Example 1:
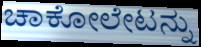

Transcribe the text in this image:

ಚಾಕೋಲೇಟನ್ನು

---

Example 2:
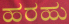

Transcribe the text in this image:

ಹರಹು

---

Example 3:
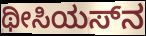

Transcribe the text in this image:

ಥೀಸಿಯಸ್‌ನ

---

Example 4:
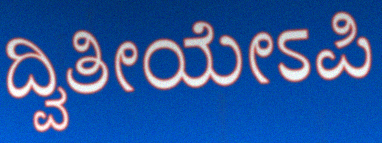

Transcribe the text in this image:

ದ್ವಿತೀಯೇಽಪಿ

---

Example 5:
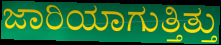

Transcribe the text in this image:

ಜಾರಿಯಾಗುತ್ತಿತ್ತು